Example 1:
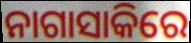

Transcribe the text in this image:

ନାଗାସାକିରେ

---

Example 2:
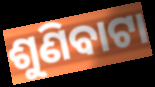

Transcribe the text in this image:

ଶୁଣିବାଟା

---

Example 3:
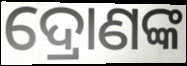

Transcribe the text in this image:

ଦ୍ରୋଣଙ୍କ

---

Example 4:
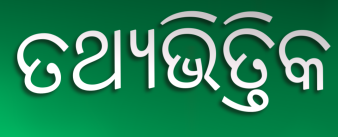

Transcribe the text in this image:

ତଥ୍ୟଭିତ୍ତିକ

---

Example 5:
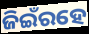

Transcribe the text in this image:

ଜିଇଁରହେ